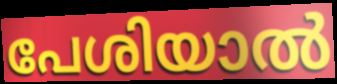
പേശിയാൽ